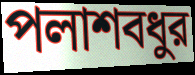
পলাশবধুর